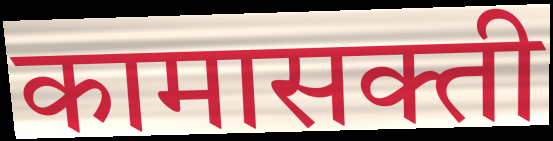
कामासक्ती